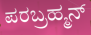
ಪರಬ್ರಹ್ಮನ್